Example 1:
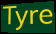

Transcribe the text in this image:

Tyre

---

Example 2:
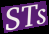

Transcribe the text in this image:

STs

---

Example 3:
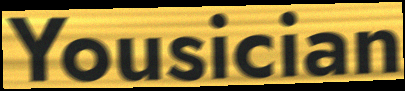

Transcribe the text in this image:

Yousician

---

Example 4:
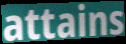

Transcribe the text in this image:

attains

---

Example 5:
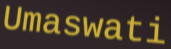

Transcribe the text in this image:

Umaswati